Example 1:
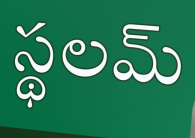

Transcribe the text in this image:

స్థలమ్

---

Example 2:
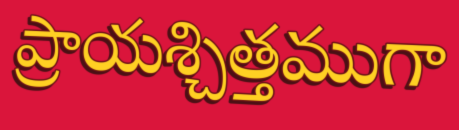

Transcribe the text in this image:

ప్రాయశ్చిత్తముగా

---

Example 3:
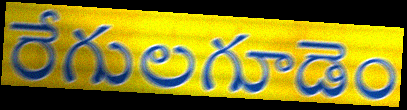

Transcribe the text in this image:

రేగులగూడెం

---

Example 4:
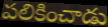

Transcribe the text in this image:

పలికించాడు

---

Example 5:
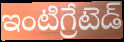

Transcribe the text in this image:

ఇంటిగ్రేటెడ్